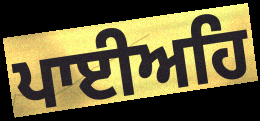
ਪਾਈਅਹਿ